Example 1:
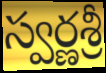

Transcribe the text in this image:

స్వర్ణశ్రీ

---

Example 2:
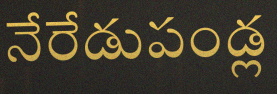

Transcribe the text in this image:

నేరేడుపండ్ల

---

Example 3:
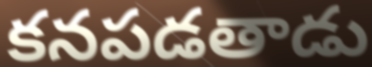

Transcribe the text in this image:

కనపడతాడు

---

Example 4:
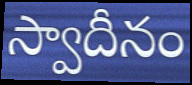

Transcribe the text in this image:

స్వాదీనం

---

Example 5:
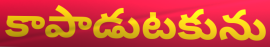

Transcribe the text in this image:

కాపాడుటకును